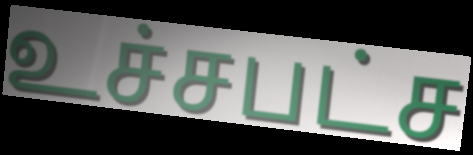
உச்சபட்ச